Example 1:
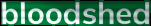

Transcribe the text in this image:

bloodshed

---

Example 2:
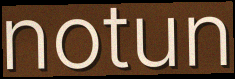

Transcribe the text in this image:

notun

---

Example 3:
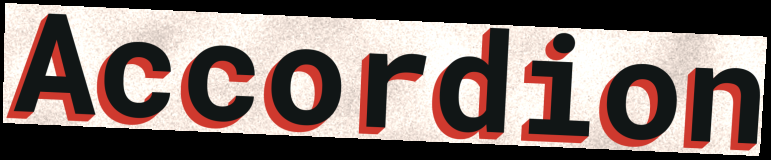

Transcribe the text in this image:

Accordion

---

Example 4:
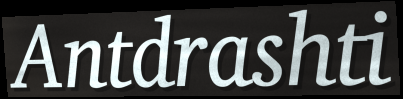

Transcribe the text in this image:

Antdrashti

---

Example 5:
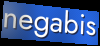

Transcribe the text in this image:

negabis